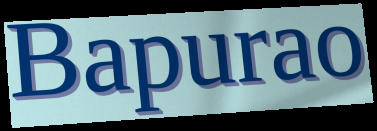
Bapurao